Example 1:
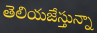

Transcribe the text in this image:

తెలియజేస్తున్నా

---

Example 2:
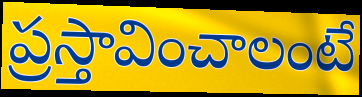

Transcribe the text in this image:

ప్రస్తావించాలంటే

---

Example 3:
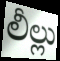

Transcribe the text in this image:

లీల్లు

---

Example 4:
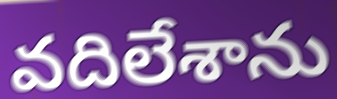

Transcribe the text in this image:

వదిలేశాను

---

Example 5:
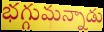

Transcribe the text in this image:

భగ్గుమన్నాడు